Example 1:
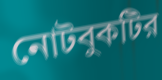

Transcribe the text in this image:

নোটবুকটির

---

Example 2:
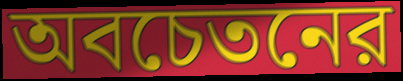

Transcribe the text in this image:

অবচেতনের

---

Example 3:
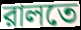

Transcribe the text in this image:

রালতে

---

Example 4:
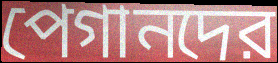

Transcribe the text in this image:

পেগানদের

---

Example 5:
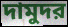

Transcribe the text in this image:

দামুদর